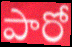
పారో